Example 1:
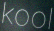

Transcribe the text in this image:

kool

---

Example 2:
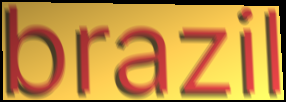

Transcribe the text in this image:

brazil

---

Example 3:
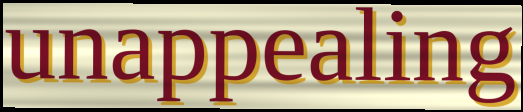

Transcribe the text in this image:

unappealing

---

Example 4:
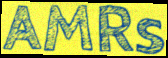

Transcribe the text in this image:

AMRs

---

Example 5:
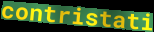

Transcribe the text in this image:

contristati